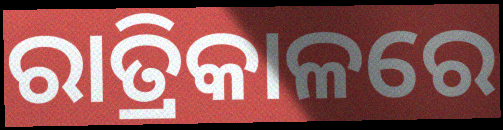
ରାତ୍ରିକାଳରେ